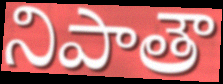
నిపాతౌ